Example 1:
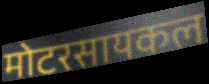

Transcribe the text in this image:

मोटरसायकल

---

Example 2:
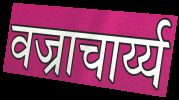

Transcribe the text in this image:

वज्राचार्य्य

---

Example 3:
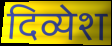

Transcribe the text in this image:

दिव्येश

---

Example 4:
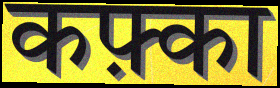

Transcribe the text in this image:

कफ़्का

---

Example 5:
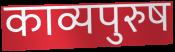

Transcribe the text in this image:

काव्यपुरुष